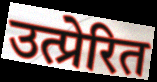
उत्‍प्रेरित